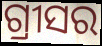
ଗ୍ରୀସର